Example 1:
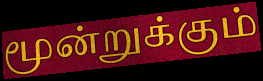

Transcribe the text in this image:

மூன்றுக்கும்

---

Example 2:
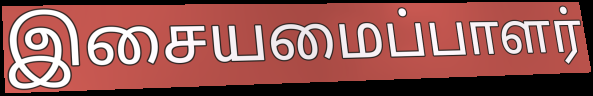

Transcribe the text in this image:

இசையமைப்பாளர்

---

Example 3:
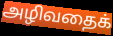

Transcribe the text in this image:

அழிவதைக்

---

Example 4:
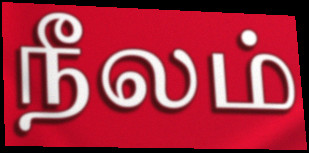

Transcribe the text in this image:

நீலம்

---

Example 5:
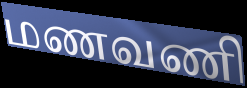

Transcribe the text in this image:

மணவணி